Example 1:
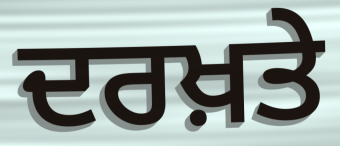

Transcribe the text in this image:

ਦਰਖ਼ਤੇ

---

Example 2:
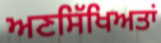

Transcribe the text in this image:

ਅਣਸਿੱਖਿਅਤਾਂ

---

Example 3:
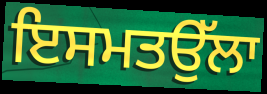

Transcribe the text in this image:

ਇਸਮਤਉੱਲਾ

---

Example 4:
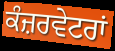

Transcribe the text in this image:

ਕੰਜ਼ਰਵੇਟਰਾਂ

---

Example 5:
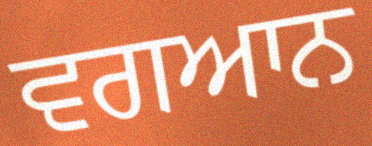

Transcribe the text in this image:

ਵਗਆਨ